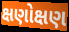
ક્ષણોક્ષણ